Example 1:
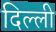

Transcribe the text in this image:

दिल्ली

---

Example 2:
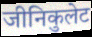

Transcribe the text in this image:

जीनिकुलेट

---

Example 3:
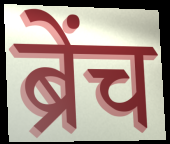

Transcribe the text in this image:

ब्रेंच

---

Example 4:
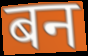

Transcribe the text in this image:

बन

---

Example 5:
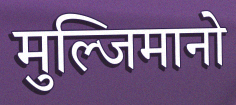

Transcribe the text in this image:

मुल्जिमानो